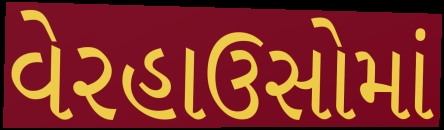
વેરહાઉસોમાં